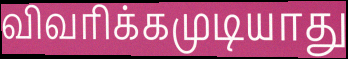
விவரிக்கமுடியாது